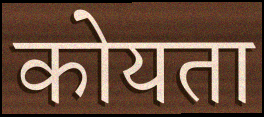
कोयता